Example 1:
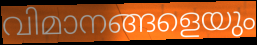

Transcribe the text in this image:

വിമാനങ്ങളെയും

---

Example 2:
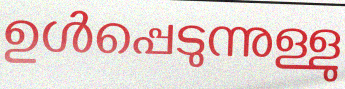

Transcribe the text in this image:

ഉൾപ്പെടുന്നുള്ളു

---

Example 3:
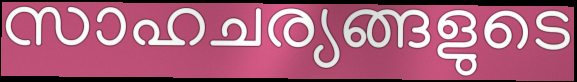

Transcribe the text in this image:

സാഹചര്യങ്ങളുടെ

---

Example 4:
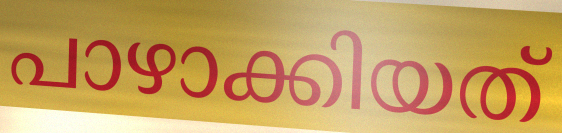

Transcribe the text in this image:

പാഴാക്കിയത്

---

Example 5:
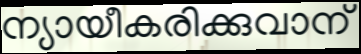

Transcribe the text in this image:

ന്യായീകരിക്കുവാന്